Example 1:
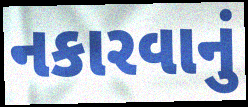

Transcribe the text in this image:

નકારવાનું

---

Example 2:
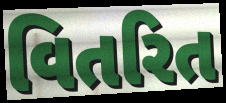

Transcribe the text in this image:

વિતરિત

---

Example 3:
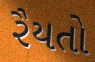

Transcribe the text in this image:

રૈયતો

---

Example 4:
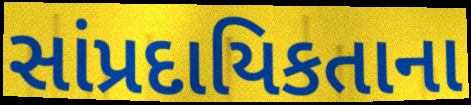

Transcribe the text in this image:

સાંપ્રદાયિકતાના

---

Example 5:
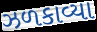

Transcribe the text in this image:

ઝળકાવ્યા